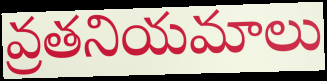
వ్రతనియమాలు